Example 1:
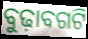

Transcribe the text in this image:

ବୁଢ଼ାବଗଟି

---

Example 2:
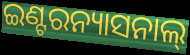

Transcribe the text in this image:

ଇଣ୍ଟରନ୍ୟାସନାଲ୍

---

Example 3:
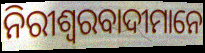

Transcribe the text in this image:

ନିରୀଶ୍ବରବାଦୀମାନେ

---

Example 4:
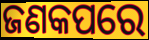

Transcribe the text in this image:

ଜଣକପରେ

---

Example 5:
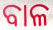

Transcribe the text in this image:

ବାଳ